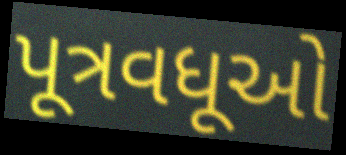
પૂત્રવધૂઓ